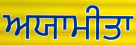
ਅਯਾਮੀਤਾ